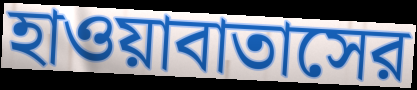
হাওয়াবাতাসের